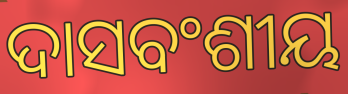
ଦାସବଂଶୀୟ